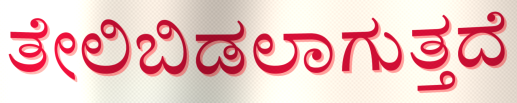
ತೇಲಿಬಿಡಲಾಗುತ್ತದೆ